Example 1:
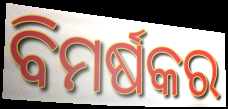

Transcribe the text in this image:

ବିମର୍ଷକର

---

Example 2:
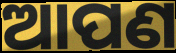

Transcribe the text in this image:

ଆପଣ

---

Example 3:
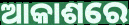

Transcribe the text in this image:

ଆକାଶରେ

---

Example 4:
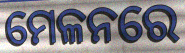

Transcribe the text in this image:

ମେଳନରେ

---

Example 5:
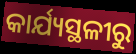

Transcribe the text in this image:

କାର୍ଯ୍ୟସ୍ଥଳୀରୁ